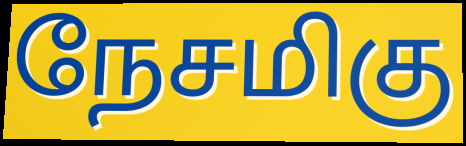
நேசமிகு